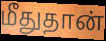
மீதுதான்